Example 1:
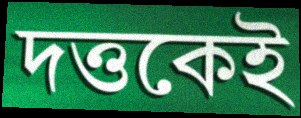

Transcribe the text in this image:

দত্তকেই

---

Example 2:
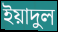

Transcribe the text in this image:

ইয়াদুল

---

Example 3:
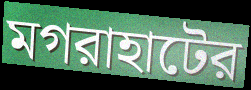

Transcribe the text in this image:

মগরাহাটের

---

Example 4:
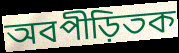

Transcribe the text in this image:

অবপীড়িতক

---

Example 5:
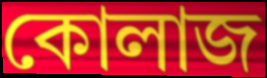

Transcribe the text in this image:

কোলাজ